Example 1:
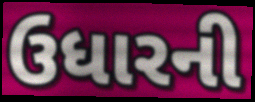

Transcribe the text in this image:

ઉધારની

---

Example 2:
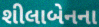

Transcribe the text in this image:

શીલાબેનના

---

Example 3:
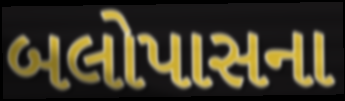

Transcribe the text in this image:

બલોપાસના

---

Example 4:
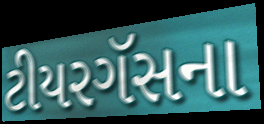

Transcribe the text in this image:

ટીયરગૅસના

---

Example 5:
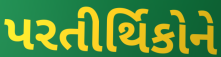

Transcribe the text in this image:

પરતીર્થિકોને